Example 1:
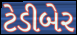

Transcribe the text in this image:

ટેડીબેર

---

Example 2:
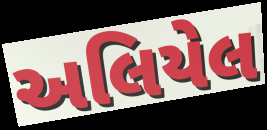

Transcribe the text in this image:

અલિયેલ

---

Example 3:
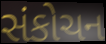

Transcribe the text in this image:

સંકોચન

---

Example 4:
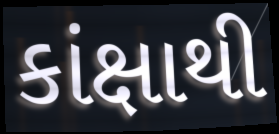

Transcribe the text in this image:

કાંક્ષાથી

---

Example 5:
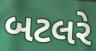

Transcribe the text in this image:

બટલરે